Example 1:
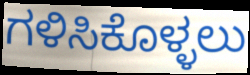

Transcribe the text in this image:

ಗಳಿಸಿಕೊಳ್ಳಲು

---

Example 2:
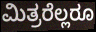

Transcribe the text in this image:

ಮಿತ್ರರೆಲ್ಲರೂ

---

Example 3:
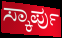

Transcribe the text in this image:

ಸ್ಕಾರ್ಪು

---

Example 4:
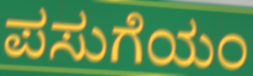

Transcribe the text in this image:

ಪಸುಗೆಯಂ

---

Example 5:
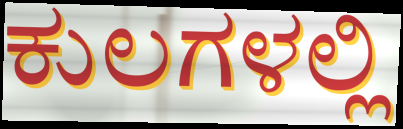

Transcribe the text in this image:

ಕುಲಗಳಲ್ಲಿ